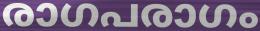
രാഗപരാഗം